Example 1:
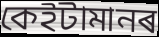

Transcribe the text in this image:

কেইটামানৰ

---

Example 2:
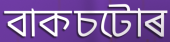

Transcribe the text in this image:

বাকচটোৰ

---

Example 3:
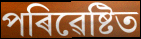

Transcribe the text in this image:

পৰিৱেষ্টিত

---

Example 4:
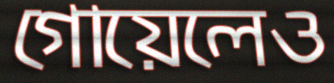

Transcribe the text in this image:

গোয়েলেও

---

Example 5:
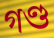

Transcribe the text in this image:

গণ্ড